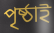
পৃষ্ঠাই